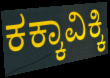
ಕಕ್ಕಾವಿಕ್ಕಿ